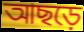
আছড়ে